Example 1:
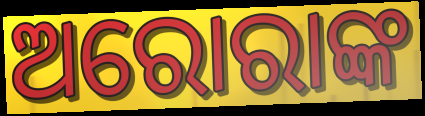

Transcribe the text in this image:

ଅରୋରାଙ୍କ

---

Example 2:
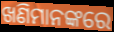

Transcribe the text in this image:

ଖଣିମାନଙ୍କରେ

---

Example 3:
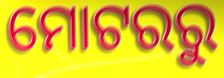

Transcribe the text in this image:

ମୋଟରରୁ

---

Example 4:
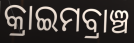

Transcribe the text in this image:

କ୍ରାଇମବ୍ରାଞ୍ଚ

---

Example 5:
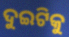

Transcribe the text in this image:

ଦୁଇଟିକୁ